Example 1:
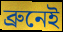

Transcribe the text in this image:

ব্রুনেই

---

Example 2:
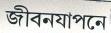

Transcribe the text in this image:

জীবনযাপনে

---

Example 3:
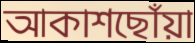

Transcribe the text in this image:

আকাশছোঁয়া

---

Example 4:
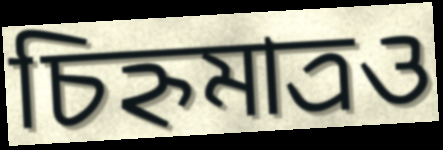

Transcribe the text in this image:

চিহ্নমাত্রও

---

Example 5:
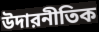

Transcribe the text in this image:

উদারনীতিক